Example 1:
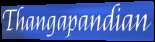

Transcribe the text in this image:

Thangapandian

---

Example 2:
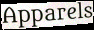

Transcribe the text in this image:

Apparels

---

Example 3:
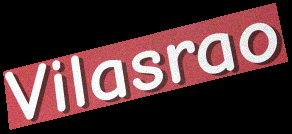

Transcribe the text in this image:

Vilasrao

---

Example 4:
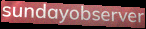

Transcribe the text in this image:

sundayobserver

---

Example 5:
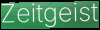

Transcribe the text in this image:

Zeitgeist